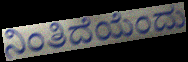
ನಿಂತಿದೆಯೆಂದು